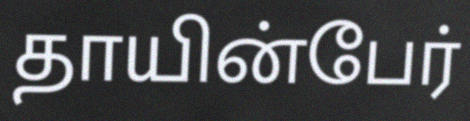
தாயின்பேர்